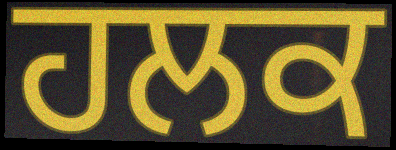
ਹਲਕ